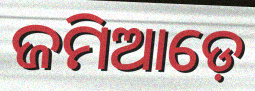
ଜମିଆଡ଼େ